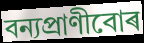
বন্যপ্ৰাণীবোৰ